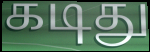
கடிது